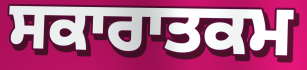
ਸਕਾਰਾਤਕਮ